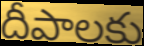
దీపాలకు